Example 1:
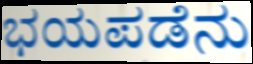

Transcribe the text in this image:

ಭಯಪಡೆನು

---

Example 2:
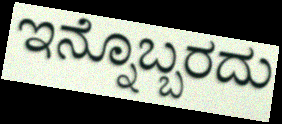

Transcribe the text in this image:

ಇನ್ನೊಬ್ಬರದು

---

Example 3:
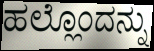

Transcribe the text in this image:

ಹಲ್ಲೊಂದನ್ನು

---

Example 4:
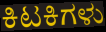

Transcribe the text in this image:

ಕಿಟಕಿಗಳು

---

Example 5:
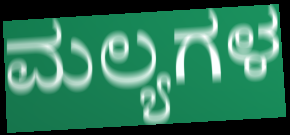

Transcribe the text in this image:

ಮಲ್ಯಗಳ